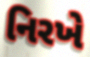
નિરખે